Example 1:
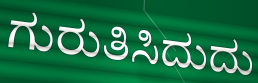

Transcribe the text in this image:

ಗುರುತಿಸಿದುದು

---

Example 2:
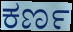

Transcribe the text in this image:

ಕರ್ಣ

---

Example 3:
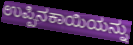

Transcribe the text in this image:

ಉಪ್ಪಿನಕಾಯಿಯನ್ನು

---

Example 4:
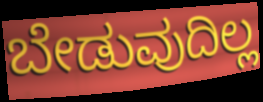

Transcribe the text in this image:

ಬೇಡುವುದಿಲ್ಲ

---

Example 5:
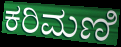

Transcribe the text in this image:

ಕರಿಮಣಿ